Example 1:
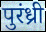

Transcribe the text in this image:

पुरंध्री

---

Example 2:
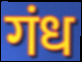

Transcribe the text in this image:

गंध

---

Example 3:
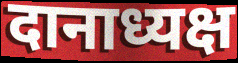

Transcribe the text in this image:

दानाध्यक्ष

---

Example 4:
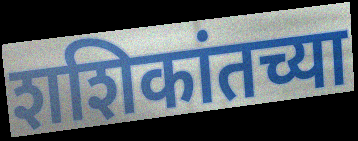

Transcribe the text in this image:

शशिकांतच्या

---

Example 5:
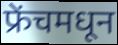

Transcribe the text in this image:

फ्रेंचमधून